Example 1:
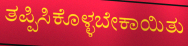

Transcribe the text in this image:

ತಪ್ಪಿಸಿಕೊಳ್ಳಬೇಕಾಯಿತು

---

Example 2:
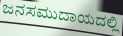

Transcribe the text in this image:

ಜನಸಮುದಾಯದಲ್ಲಿ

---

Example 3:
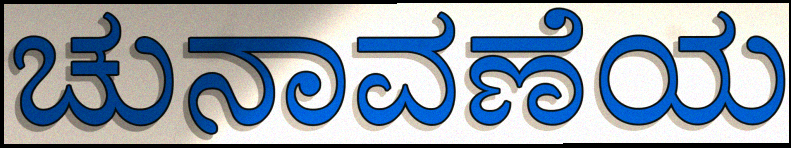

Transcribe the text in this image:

ಚುನಾವಣೆಯ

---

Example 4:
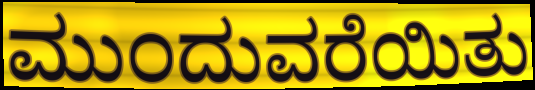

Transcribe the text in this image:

ಮುಂದುವರೆಯಿತು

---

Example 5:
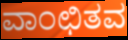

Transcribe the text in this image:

ವಾಂಛಿತವ